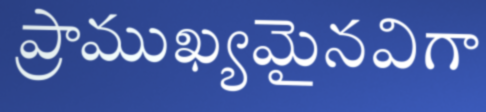
ప్రాముఖ్యమైనవిగా